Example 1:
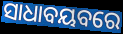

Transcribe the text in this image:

ସାଧାବୟବରେ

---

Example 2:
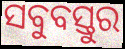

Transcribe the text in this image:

ସବୁବସ୍ତୁର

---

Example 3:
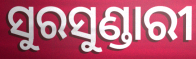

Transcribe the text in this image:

ସୁରସୁଣ୍ଡାରୀ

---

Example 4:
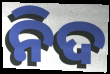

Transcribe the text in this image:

ନିଦ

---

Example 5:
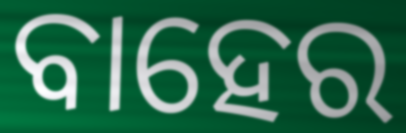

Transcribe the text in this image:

ବାହେର